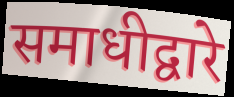
समाधीद्वारे